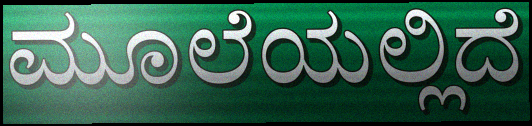
ಮೂಲೆಯಲ್ಲಿದೆ